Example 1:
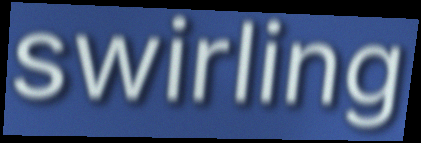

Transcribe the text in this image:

swirling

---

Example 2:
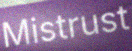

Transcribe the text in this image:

Mistrust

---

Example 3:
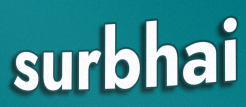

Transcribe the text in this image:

surbhai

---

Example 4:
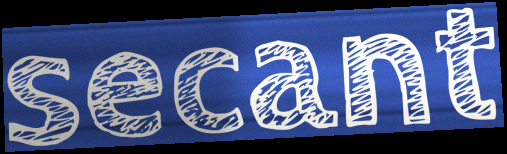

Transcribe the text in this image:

secant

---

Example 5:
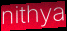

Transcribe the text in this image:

nithya